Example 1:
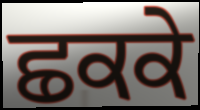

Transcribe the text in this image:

ਛਕਕੇ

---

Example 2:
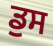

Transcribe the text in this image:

ਡੁਸ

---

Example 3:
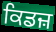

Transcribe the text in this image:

ਕਿਡਜ਼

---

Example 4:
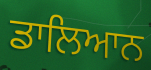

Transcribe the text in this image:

ਡਾਲਿਆਨ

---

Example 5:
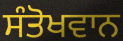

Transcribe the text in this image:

ਸੰਤੋਖਵਾਨ